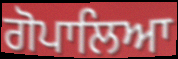
ਗੋਪਾਲਿਆ